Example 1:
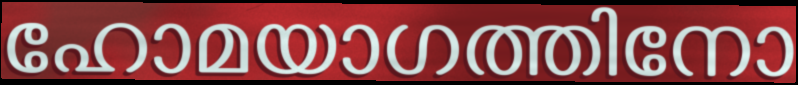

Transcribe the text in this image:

ഹോമയാഗത്തിനോ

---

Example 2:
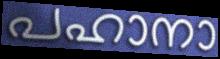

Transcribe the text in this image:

പഹാനാ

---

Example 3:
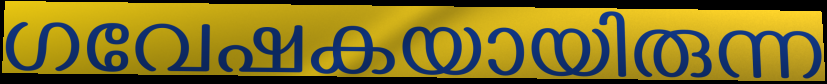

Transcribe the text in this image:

ഗവേഷകയായിരുന്ന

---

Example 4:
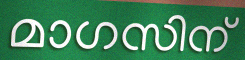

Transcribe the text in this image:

മാഗസിന്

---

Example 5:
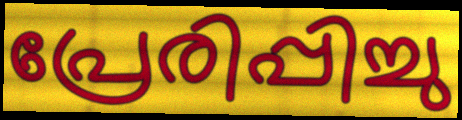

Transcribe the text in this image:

പ്രേരിപ്പിച്ചു